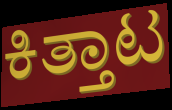
ಕಿತ್ತಾಟ